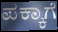
ಪಕ್ಕಾಗೆ